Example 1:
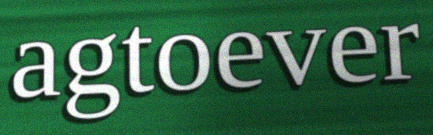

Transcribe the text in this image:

agtoever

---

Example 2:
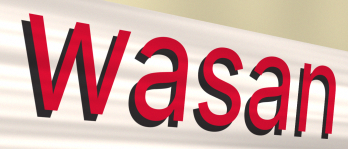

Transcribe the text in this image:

wasan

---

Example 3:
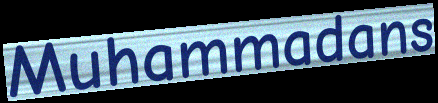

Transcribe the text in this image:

Muhammadans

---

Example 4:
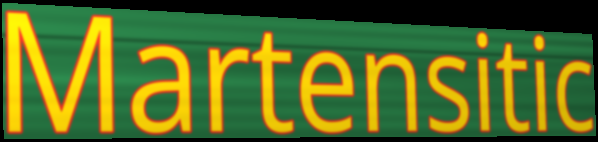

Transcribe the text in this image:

Martensitic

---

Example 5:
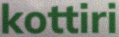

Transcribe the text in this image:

kottiri